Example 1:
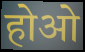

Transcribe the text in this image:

होओ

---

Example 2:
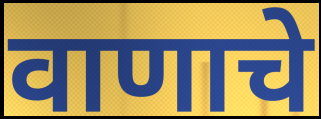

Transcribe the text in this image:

वाणाचे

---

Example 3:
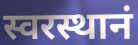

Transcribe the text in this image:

स्वरस्थानं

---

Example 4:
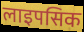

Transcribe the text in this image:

लाइपसिक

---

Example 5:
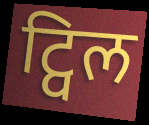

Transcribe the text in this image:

ट्विल